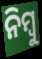
ନିମ୍ବୁ